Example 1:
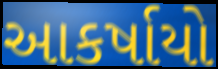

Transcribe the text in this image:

આકર્ષાયો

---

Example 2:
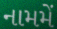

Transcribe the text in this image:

નામમેં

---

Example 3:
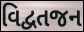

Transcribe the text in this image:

વિદ્વતજન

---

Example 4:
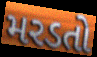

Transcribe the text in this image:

મરડતો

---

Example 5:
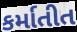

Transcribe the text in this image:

કર્માતીત